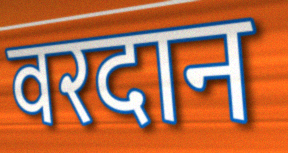
वरदान